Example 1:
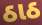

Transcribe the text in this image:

ઠાઠ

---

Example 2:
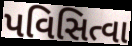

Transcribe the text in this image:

પવિસિત્વા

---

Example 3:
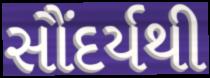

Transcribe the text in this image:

સૌંદર્યથી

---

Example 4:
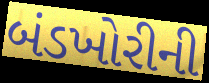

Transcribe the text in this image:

બંડખોરીની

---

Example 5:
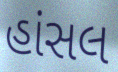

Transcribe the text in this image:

હાંસલ